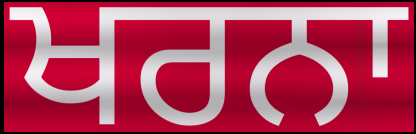
ਖਰਨਾ